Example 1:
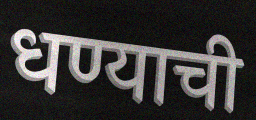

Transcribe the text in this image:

धण्याची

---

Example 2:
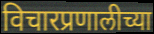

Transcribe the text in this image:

विचारप्रणालीच्या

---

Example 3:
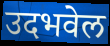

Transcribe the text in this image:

उदभवेल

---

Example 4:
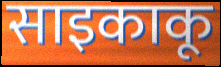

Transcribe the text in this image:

साइकाकू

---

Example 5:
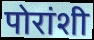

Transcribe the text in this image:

पोरांशी